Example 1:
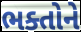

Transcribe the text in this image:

ભક્તોને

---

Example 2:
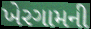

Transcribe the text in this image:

ખેરગામની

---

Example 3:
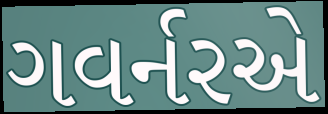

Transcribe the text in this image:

ગવર્નરએ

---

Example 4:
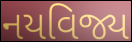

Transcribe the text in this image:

નયવિજ્ય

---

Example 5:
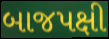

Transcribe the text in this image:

બાજપક્ષી